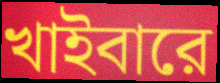
খাইবারে